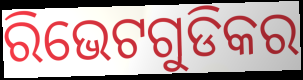
ରିଭେଟଗୁଡିକର